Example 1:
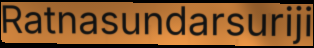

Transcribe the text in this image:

Ratnasundarsuriji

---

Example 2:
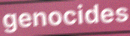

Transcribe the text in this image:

genocides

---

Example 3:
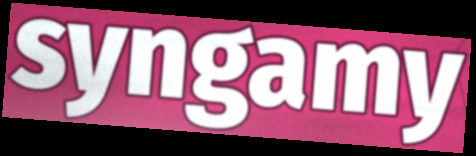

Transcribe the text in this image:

syngamy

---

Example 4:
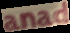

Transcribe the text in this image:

anad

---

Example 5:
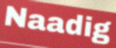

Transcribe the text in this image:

Naadig